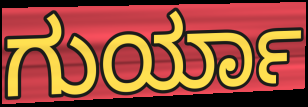
ಗುರ್ಯಾ